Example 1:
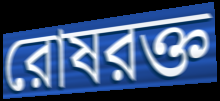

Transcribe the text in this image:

রোষরক্ত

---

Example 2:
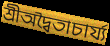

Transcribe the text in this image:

শ্রীঅদ্বৈতাচার্য্য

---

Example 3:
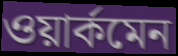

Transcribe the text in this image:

ওয়ার্কমেন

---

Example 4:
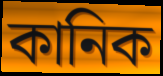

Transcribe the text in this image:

কানিক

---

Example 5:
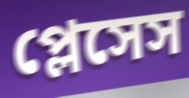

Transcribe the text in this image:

প্লেসেস